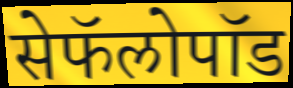
सेफॅलोपॉड